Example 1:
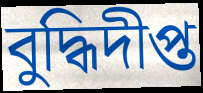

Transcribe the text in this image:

বুদ্ধিদীপ্ত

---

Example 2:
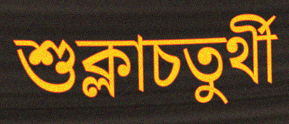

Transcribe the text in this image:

শুক্লাচতুৰ্থী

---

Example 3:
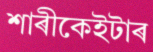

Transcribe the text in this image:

শাৰীকেইটাৰ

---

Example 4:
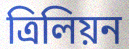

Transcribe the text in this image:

ত্ৰিলিয়ন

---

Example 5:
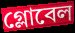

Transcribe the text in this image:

গ্লোবেল